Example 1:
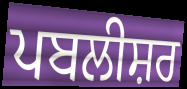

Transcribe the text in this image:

ਪਬਲੀਸ਼ਰ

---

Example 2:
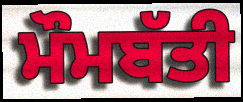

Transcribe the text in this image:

ਮੌਮਬੱਤੀ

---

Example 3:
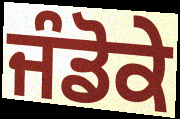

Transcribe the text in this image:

ਜੰਡੋਕੇ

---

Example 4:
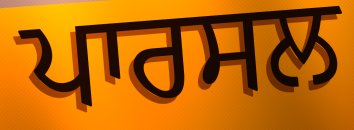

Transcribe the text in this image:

ਪਾਰਸਲ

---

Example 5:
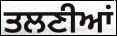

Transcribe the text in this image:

ਤਲਣੀਆਂ